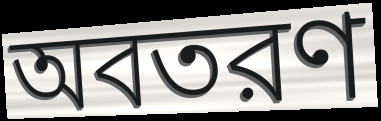
অবতরণ